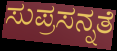
ಸುಪ್ರಸನ್ನತೆ